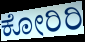
ಕೋರಿರಿ